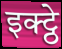
इक्ट्ठे